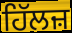
ਹਿੱਲਜ਼